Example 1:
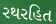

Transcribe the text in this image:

રથરહિત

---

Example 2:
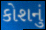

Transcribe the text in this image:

કોશનું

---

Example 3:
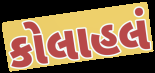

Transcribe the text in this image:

કોલાહલં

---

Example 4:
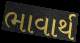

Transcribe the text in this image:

ભાવાર્થ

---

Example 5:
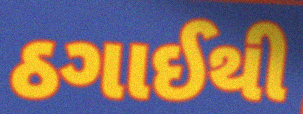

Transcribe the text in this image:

ઠગાઈથી